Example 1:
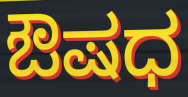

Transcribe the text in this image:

ಔಷಧ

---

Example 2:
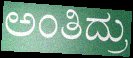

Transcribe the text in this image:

ಅಂತಿದ್ರು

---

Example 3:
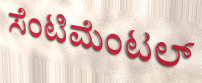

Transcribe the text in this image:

ಸೆಂಟಿಮೆಂಟಲ್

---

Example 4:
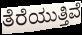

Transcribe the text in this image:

ತೆರೆಯುತ್ತಿವೆ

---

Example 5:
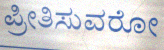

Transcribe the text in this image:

ಪ್ರೀತಿಸುವರೋ